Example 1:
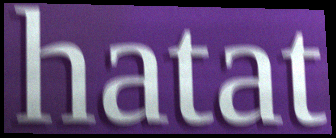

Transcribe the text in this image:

hatat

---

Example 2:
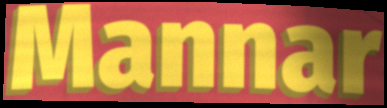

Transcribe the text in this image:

Mannar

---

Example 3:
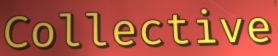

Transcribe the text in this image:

Collective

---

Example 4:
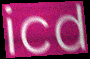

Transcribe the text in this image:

icd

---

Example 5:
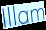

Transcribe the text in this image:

Illam